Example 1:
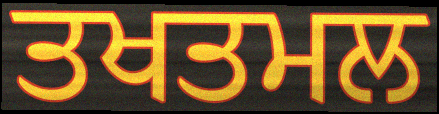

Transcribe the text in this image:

ਤਖਤਮਲ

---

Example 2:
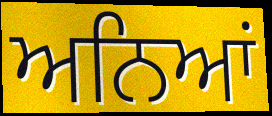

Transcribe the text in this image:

ਅਨਿਆਂ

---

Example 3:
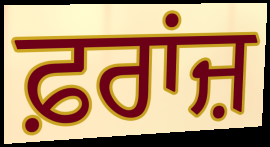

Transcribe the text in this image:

ਫ਼ਰਾਂਜ਼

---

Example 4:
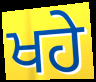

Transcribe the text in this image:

ਖਹੇ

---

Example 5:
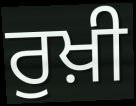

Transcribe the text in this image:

ਰੁਖ਼ੀ